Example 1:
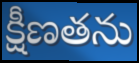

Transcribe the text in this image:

క్షీణతను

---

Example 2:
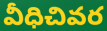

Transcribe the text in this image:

వీధిచివర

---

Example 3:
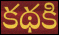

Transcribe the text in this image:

కథకి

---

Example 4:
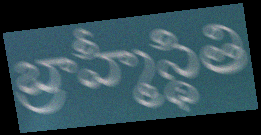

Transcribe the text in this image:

బ్రాహ్మీస్థితి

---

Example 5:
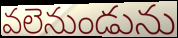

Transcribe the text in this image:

వలెనుండును